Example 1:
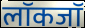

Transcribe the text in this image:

लॉकजॉ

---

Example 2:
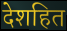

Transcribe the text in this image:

देशहित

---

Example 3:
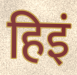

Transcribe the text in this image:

हिइं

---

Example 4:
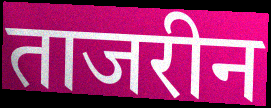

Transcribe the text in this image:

ताजरीन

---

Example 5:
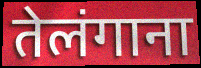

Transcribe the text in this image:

तेलंगाना